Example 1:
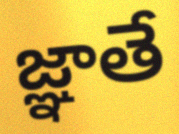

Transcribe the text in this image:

జ్ఞాతే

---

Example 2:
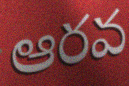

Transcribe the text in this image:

ఆరవ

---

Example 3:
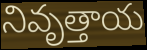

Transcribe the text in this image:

నివృత్తాయ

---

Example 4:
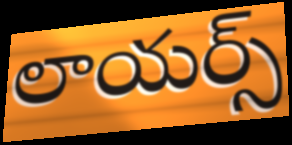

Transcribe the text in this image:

లాయర్స్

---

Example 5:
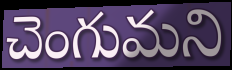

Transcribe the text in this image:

చెంగుమని